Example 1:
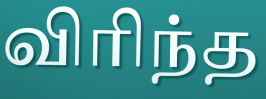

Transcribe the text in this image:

விரிந்த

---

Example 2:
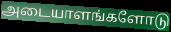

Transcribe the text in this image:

அடையாளங்களோடு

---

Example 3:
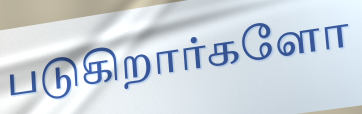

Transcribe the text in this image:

படுகிறார்களோ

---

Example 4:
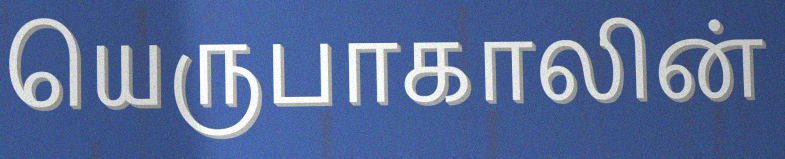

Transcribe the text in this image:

யெருபாகாலின்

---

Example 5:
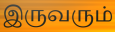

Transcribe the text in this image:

இருவரும்